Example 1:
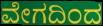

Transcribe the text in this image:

ವೇಗದಿಂದ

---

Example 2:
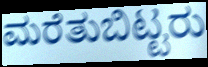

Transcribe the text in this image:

ಮರೆತುಬಿಟ್ಟರು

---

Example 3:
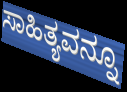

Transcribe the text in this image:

ಸಾಹಿತ್ಯವನ್ನೂ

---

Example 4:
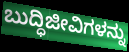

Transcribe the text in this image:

ಬುದ್ಧಿಜೀವಿಗಳನ್ನು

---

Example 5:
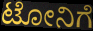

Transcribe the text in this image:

ಟೋನಿಗೆ